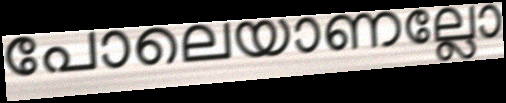
പോലെയാണല്ലോ